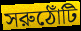
সরুঠোঁটি